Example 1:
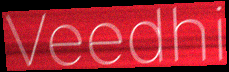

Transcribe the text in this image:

Veedhi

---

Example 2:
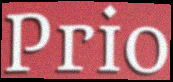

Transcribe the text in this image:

Prio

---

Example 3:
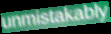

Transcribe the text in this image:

unmistakably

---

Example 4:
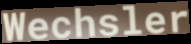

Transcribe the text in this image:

Wechsler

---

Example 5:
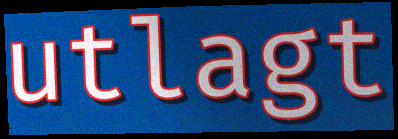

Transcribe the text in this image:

utlagt